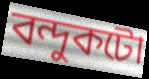
বন্দুকটো